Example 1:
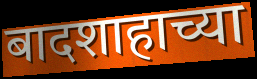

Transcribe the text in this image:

बादशाहाच्या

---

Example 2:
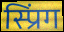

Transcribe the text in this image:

स्प्रिंग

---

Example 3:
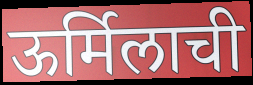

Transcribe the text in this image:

ऊर्मिलाची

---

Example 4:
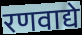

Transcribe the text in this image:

रणवाद्ये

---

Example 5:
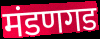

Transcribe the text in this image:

मंडणगड